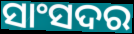
ସାଂସଦର